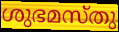
ശുഭമസ്തു